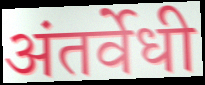
अंतर्वेधी